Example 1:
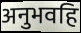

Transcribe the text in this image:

अनुभवहि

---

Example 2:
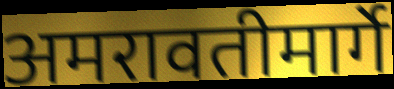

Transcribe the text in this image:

अमरावतीमार्गे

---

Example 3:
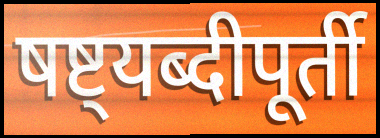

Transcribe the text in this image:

षष्ट्यब्दीपूर्ती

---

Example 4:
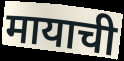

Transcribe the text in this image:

मायाची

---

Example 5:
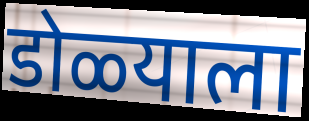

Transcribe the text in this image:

डोळ्याला